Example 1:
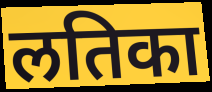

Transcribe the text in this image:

लतिका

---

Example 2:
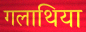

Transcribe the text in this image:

गलाथिया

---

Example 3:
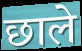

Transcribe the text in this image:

छाले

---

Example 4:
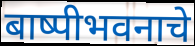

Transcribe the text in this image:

बाष्पीभवनाचे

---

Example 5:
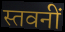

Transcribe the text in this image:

स्तवनीं